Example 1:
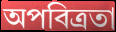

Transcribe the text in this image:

অপবিত্রতা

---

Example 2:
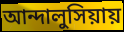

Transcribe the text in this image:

আন্দালুসিয়ায়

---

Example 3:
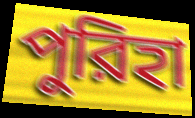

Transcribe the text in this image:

পুরিহা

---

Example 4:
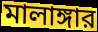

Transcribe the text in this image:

মালাঙ্গার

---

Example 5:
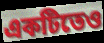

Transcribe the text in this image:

একটিতেও